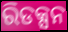
ରିଡକ୍ସନ